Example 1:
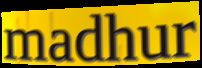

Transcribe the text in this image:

madhur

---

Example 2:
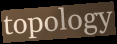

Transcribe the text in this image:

topology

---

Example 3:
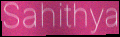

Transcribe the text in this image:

Sahithya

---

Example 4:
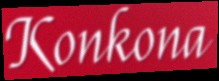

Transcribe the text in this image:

Konkona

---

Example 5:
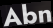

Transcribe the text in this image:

Abn